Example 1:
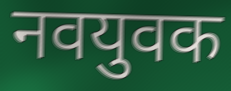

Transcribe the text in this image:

नवयुवक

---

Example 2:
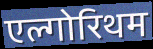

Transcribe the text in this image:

एल्गोरिथम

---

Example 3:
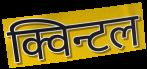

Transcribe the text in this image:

क्विन्टल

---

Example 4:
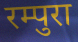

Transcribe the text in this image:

रम्पुरा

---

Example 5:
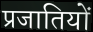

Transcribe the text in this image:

प्रजातियों